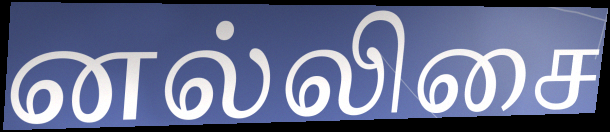
னல்லிசை